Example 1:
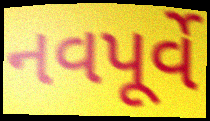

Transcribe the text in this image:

નવપૂર્વે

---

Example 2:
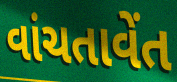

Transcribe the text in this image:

વાંચતાવેંત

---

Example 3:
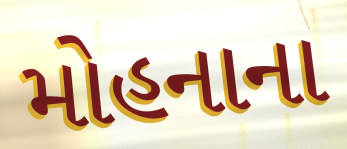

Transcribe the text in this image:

મોહનાના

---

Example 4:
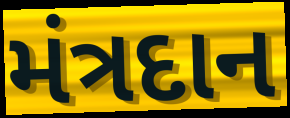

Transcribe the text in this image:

મંત્રદાન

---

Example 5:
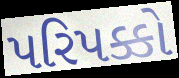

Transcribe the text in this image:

પરિપક્કો